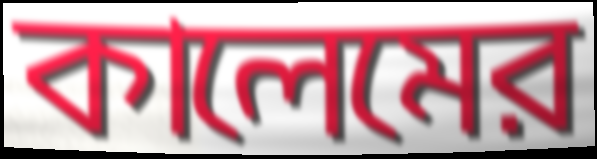
কালেমের